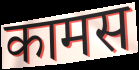
कामस